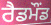
ਰੈਡਮੌਂਡ